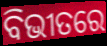
ବିଭୀତରେ